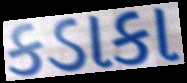
કડાકા